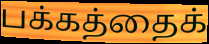
பக்கத்தைக்